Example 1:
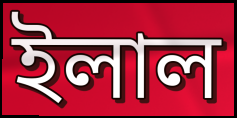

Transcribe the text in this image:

ইলাল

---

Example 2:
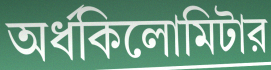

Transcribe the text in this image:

অর্ধকিলোমিটার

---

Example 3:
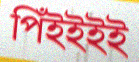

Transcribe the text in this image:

পিঁইইইই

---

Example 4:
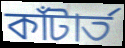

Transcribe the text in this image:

কাঁটার্ত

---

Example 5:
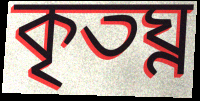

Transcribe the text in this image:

কৃতঘ্ন